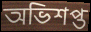
অভিশপ্ত